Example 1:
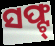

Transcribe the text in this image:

ସଫ୍ଟ୍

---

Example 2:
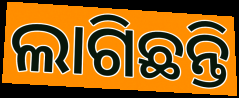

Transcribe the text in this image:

ଲାଗିଛନ୍ତି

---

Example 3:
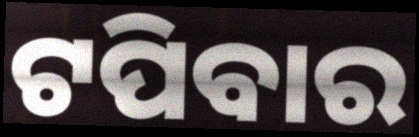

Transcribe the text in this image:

ଟପିବାର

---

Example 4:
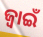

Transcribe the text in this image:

ଜ୍ବାଇଁ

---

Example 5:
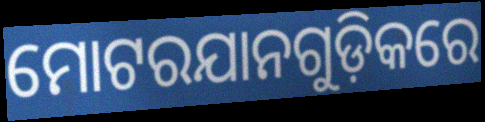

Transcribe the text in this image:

ମୋଟରଯାନଗୁଡ଼ିକରେ